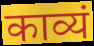
काव्यं